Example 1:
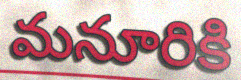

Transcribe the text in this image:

మనూరికి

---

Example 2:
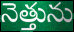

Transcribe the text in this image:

నెత్తును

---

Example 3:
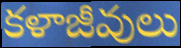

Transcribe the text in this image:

కళాజీవులు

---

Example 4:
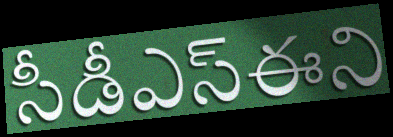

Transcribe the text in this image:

సీడీఎస్ఈని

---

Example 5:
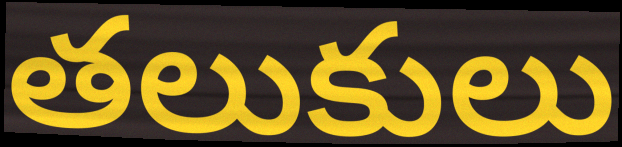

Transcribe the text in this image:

తలుకులు